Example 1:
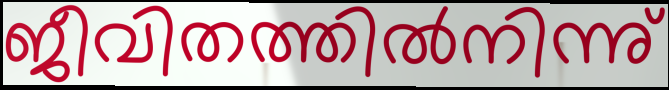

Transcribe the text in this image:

ജീവിതത്തിൽനിന്നു്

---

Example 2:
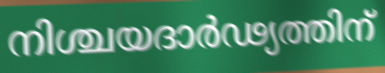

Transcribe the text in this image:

നിശ്ചയദാർഢ്യത്തിന്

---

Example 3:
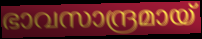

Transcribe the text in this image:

ഭാവസാന്ദ്രമായ്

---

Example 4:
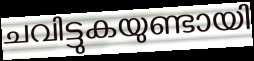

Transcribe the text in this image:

ചവിട്ടുകയുണ്ടായി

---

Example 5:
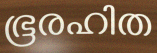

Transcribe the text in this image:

ഭൂരഹിത